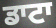
ਡਾਟਾ